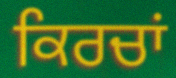
ਕਿਰਚਾਂ